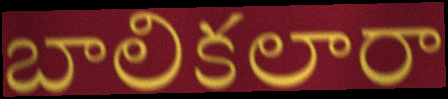
బాలికలారా